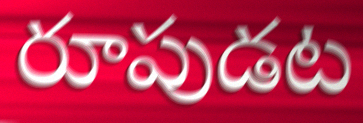
రూపుడట